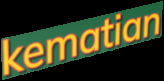
kematian